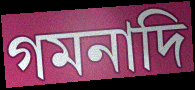
গমনাদি